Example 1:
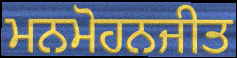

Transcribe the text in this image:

ਮਨਮੋਹਨਜੀਤ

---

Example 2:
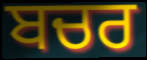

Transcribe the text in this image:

ਬਚਰ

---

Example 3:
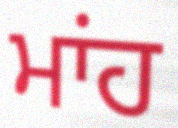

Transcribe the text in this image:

ਮਾਂਹ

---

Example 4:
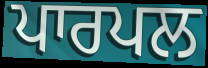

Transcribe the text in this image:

ਪਾਰਪਲ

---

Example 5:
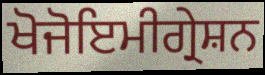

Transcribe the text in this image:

ਖੋਜੋਇਮੀਗ੍ਰੇਸ਼ਨ